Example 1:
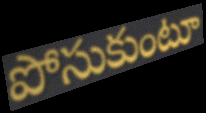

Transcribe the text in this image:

పోసుకుంటూ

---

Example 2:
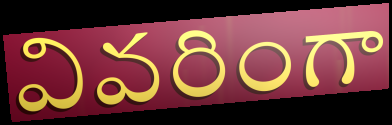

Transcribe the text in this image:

వివరింగా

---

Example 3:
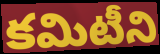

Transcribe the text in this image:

కమిటీని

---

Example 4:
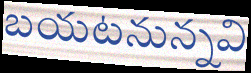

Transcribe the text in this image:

బయటనున్నవి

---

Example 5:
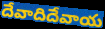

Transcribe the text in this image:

దేవాదిదేవాయ